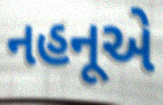
નહનૂએ